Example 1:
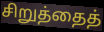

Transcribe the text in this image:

சிறுத்தைத்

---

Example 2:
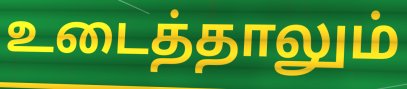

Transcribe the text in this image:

உடைத்தாலும்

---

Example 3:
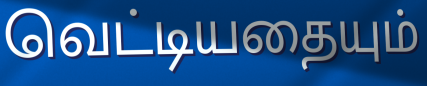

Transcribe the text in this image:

வெட்டியதையும்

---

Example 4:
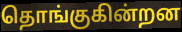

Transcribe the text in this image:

தொங்குகின்றன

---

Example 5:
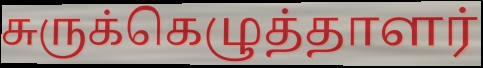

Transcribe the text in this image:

சுருக்கெழுத்தாளர்